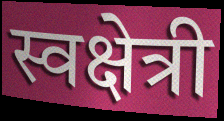
स्वक्षेत्री